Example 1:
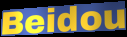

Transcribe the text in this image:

Beidou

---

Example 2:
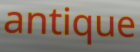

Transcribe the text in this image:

antique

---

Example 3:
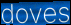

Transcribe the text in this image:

doves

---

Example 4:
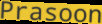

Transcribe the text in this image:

Prasoon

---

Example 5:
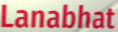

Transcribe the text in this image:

Lanabhat